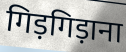
गिड़गिड़ाना